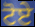
ਟੋਏ